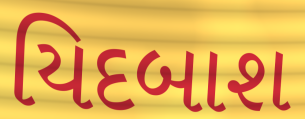
યિદબાશ